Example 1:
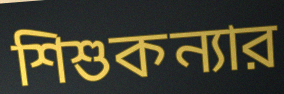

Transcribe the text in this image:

শিশুকন্যার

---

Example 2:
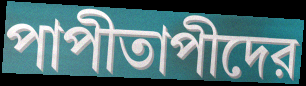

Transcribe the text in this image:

পাপীতাপীদের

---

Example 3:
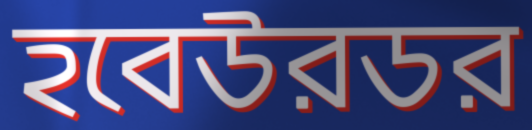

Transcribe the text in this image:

হবেউরডর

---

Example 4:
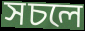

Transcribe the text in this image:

সচলে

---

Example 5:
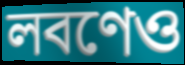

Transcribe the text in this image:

লবণেও